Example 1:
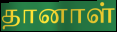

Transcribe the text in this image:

தானாள்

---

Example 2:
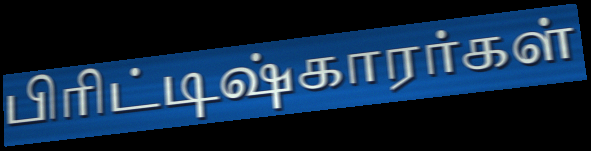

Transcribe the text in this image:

பிரிட்டிஷ்காரர்கள்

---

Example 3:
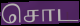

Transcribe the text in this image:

சொட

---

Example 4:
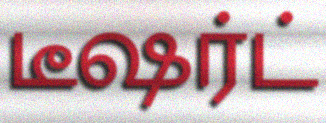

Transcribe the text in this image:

டீஷர்ட்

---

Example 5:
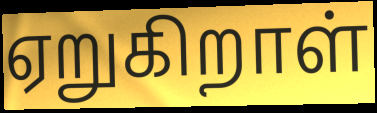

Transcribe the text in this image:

ஏறுகிறாள்